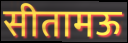
सीतामऊ